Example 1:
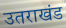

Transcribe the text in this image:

उतराखंड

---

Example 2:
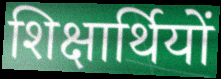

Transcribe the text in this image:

शिक्षार्थियों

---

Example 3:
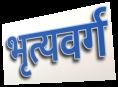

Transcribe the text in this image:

भृत्यवर्ग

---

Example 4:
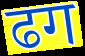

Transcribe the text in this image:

ढग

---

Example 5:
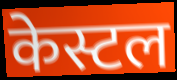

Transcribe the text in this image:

केस्टल